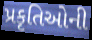
પ્રકૃતિઓની